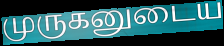
முருகனுடைய